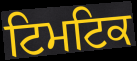
ਟਿਮਟਿਕ